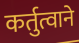
कर्तुत्वाने